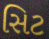
સિટ